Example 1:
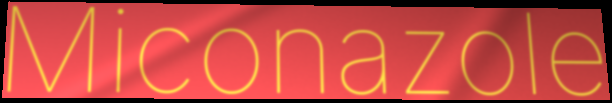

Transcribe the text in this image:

Miconazole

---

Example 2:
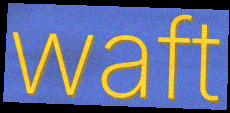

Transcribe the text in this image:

waft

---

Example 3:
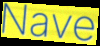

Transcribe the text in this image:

Nave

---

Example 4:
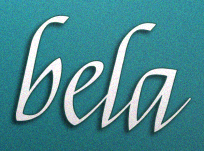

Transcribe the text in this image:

bela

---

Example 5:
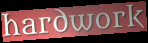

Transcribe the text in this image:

hardwork